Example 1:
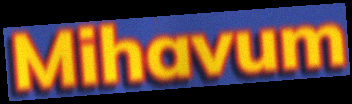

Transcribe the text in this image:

Mihavum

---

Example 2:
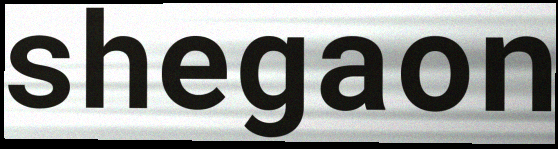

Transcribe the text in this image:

shegaon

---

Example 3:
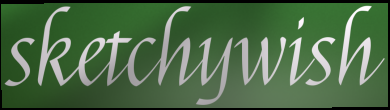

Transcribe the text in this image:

sketchywish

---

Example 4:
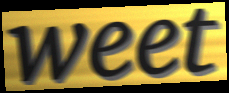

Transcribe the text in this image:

weet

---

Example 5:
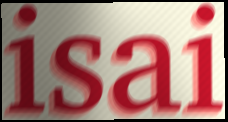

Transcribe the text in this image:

isai